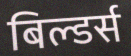
बिल्डर्स